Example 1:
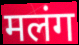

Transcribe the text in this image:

मलंग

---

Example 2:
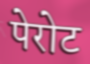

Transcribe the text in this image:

पेरोट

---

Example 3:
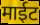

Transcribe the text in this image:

माईट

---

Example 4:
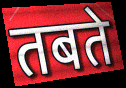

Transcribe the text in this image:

तबते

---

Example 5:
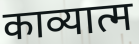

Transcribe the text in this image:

काव्यात्म